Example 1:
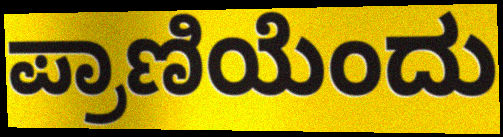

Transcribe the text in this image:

ಪ್ರಾಣಿಯೆಂದು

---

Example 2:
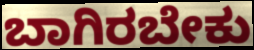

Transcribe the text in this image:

ಬಾಗಿರಬೇಕು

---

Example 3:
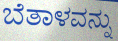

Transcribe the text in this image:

ಬೆತಾಳವನ್ನು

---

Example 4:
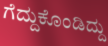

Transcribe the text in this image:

ಗೆದ್ದುಕೊಂಡಿದ್ದು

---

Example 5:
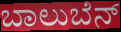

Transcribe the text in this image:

ಬಾಲುಬೆನ್